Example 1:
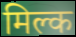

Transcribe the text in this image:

मिल्क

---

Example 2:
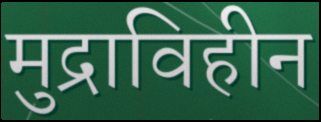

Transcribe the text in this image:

मुद्राविहीन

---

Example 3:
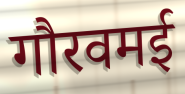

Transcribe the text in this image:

गौरवमई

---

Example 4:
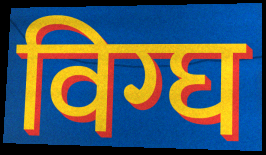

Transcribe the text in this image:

विग्घ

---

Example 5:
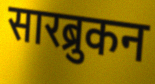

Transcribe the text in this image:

सारब्रुकन